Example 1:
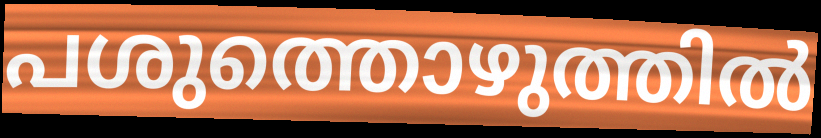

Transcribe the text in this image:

പശുത്തൊഴുത്തിൽ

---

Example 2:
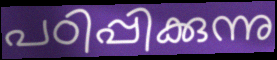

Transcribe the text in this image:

പഠിപ്പിക്കുന്നു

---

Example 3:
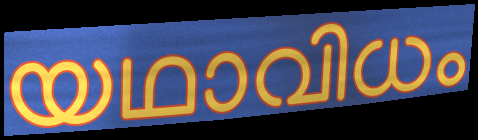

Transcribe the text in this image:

യഥാവിധം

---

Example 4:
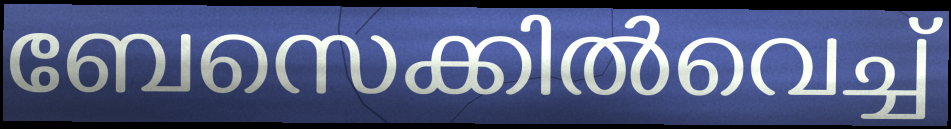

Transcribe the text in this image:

ബേസെക്കിൽവെച്ച്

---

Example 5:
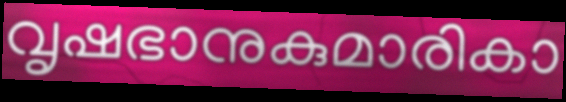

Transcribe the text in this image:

വൃഷഭാനുകുമാരികാ